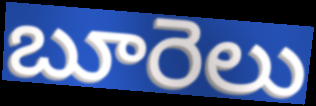
బూరెలు